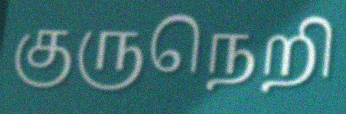
குருநெறி